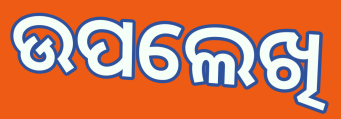
ଉପଲେଖି